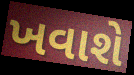
ખવાશે